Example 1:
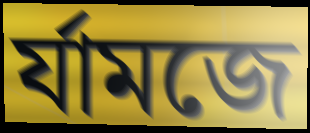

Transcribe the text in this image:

র্যামজে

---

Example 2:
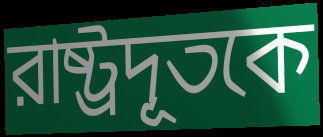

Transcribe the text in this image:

রাষ্ট্রদূতকে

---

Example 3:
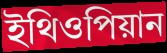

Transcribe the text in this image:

ইথিওপিয়ান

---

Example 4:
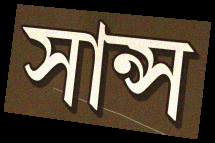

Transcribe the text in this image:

সান্স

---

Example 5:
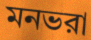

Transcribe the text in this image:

মনভরা